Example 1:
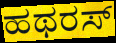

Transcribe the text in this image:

ಹಥರಸ್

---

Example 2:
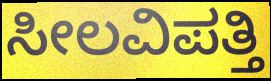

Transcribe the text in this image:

ಸೀಲವಿಪತ್ತಿ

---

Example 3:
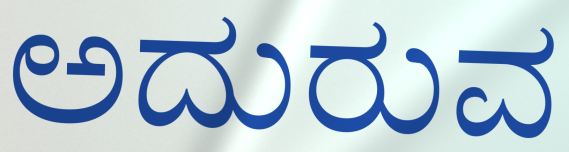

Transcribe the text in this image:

ಅದುರುವ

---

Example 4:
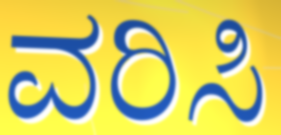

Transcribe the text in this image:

ವರಿಸಿ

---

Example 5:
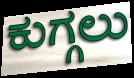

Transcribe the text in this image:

ಕುಗ್ಗಲು